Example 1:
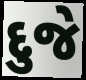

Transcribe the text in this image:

દુજે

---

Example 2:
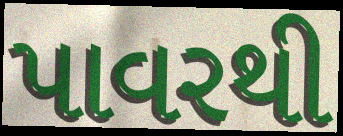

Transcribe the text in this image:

પાવરથી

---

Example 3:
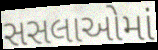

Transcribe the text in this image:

સસલાઓમાં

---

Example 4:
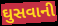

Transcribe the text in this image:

ઘુસવાની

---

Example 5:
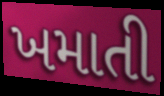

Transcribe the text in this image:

ખમાતી